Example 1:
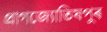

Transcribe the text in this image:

প্ৰাগজ্যোতিষপুৰ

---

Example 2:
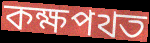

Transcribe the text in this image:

কক্ষপথত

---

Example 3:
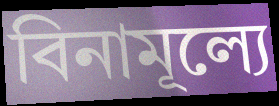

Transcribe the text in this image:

বিনামূল্যে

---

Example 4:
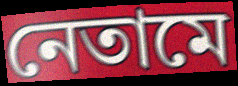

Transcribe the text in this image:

নেতামে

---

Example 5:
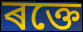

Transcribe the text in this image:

ৰক্তে